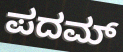
ಪದಮ್